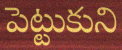
పెట్టుకుని